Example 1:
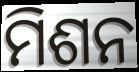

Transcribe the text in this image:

ମିଶନ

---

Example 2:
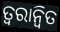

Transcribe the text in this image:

ତ୍ୱରାନ୍ୱିତ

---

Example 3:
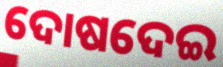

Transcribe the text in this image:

ଦୋଷଦେଇ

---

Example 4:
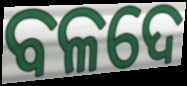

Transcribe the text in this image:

ବଳଦେ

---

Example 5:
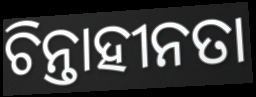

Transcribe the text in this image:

ଚିନ୍ତାହୀନତା